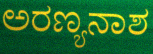
ಅರಣ್ಯನಾಶ